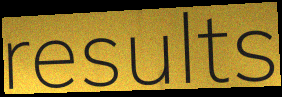
results